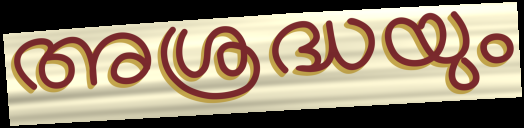
അശ്രദ്ധയും